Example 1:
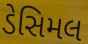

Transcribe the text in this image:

ડેસિમલ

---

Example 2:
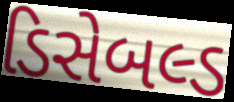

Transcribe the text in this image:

ડિસેબલ્ડ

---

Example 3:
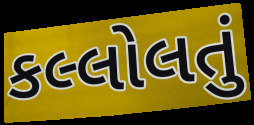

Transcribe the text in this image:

કલ્લોલતું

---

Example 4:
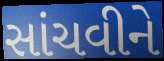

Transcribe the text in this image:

સાંચવીને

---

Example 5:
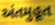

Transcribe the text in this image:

અંતમુહૂત